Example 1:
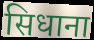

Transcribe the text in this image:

सिधाना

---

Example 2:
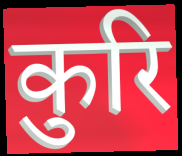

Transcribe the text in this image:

कुरि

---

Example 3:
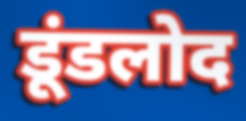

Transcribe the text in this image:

डूंडलोद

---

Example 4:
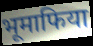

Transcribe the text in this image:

भूमाफिया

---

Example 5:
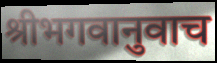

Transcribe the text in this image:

श्रीभगवानुवाच